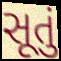
સૂતું